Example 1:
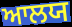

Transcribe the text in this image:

ਆਲਯ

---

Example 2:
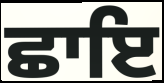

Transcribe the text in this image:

ਛਾਇ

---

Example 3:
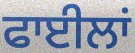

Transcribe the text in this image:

ਫਾਈਲਾਂ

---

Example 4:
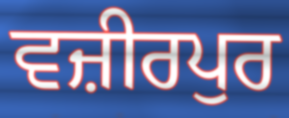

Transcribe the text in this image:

ਵਜ਼ੀਰਪੁਰ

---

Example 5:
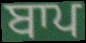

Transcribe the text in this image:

ਬਾਪ